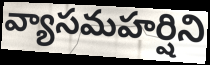
వ్యాసమహర్షిని